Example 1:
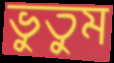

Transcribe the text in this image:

ভুতুম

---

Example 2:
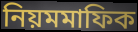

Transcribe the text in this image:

নিয়মমাফিক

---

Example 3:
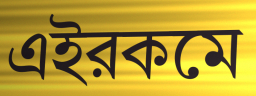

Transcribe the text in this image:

এইরকমে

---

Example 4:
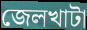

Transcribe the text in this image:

জেলখাটা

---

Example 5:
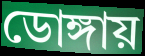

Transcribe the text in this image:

ডোঙ্গায়